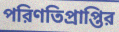
পরিণতিপ্রাপ্তির